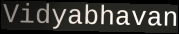
Vidyabhavan